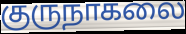
குருநாகலை